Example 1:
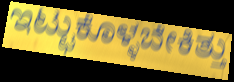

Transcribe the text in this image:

ಇಟ್ಟುಕೊಳ್ಳಬೇಕಿತ್ತು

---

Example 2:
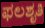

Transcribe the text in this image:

ಫಲಶೃತಿ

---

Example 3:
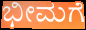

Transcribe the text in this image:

ಭೀಮಗೆ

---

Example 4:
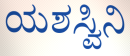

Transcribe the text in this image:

ಯಶಸ್ವಿನಿ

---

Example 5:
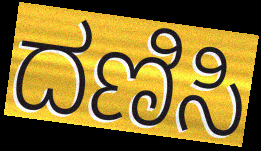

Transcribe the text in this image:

ದಣಿಸಿ